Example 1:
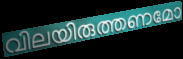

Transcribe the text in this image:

വിലയിരുത്തണമോ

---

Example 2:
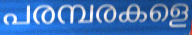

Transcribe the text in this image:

പരമ്പരകളെ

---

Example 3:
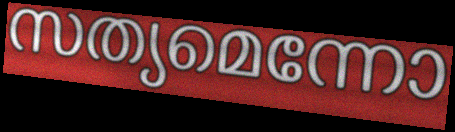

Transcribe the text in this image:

സത്യമെന്നോ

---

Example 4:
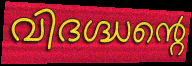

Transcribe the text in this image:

വിദഗ്ദ്ധന്റെ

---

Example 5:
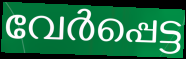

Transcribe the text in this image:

വേർപ്പെട്ട